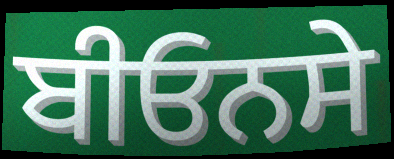
ਬੀਓਨਸੇ